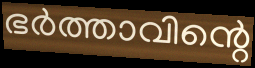
ഭർത്താവിന്റെ